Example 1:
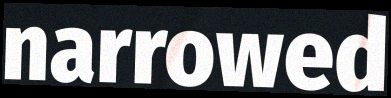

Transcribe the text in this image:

narrowed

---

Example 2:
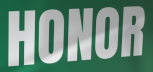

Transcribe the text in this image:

HONOR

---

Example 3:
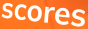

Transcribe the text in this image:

scores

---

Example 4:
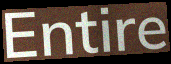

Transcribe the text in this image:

Entire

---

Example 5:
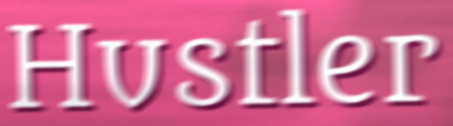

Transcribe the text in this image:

Hustler